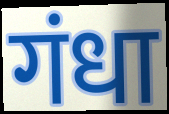
गंधा